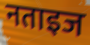
नताइज